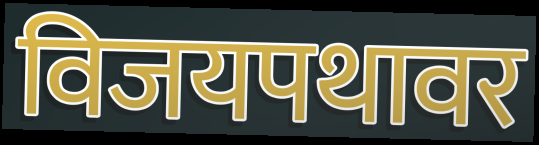
विजयपथावर